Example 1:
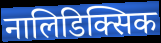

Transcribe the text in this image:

नालिडिक्सिक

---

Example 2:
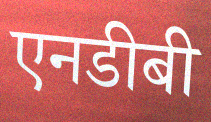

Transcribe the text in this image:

एनडीबी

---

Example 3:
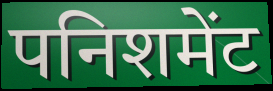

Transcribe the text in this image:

पनिशमेंट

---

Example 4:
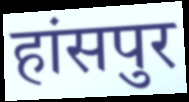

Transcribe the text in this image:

हांसपुर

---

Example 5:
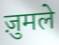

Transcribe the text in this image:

ज़ुमले